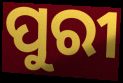
ପୁରୀ